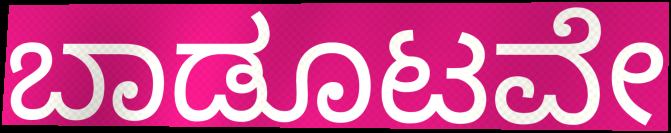
ಬಾಡೂಟವೇ